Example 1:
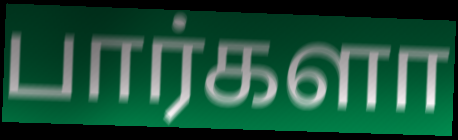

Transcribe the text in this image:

பார்களா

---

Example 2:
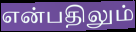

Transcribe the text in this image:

என்பதிலும்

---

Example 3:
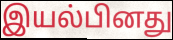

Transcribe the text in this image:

இயல்பினது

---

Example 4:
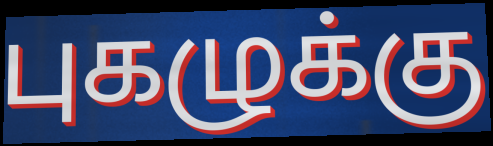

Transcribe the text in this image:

புகழுக்கு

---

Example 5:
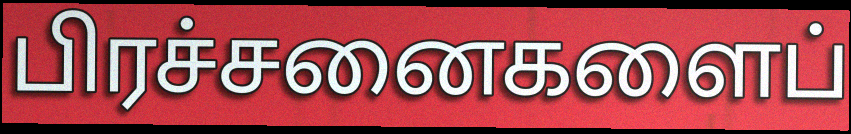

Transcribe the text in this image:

பிரச்சனைகளைப்